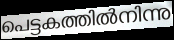
പെട്ടകത്തിൽനിന്നു